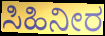
ಸಿಹಿನೀರ